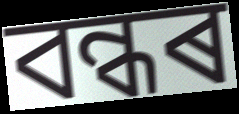
বন্ধৰ